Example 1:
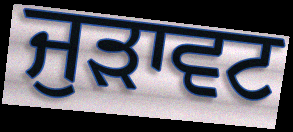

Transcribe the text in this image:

ਜੁੜਾਵਟ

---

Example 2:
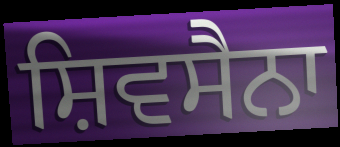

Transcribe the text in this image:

ਸ਼ਿਵਸੈਨਾ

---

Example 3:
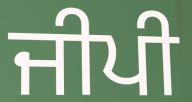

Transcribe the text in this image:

ਜੀਪੀ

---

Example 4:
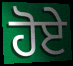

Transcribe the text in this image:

ਹੋਏੇ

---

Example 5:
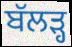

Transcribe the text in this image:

ਬੱਲੜ੍ਹ